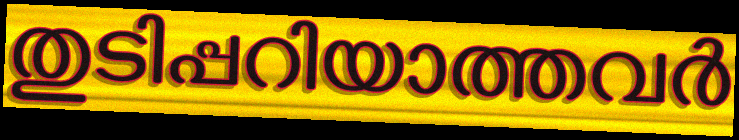
തുടിപ്പറിയാത്തവർ